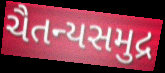
ચૈતન્યસમુદ્ર